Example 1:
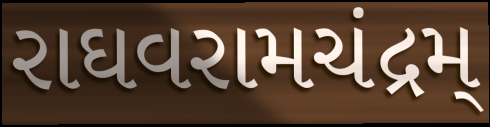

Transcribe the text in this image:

રાઘવરામચંદ્રમ્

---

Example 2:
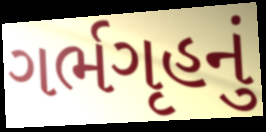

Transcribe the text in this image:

ગર્ભગૃહનું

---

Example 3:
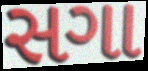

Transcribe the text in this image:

સગા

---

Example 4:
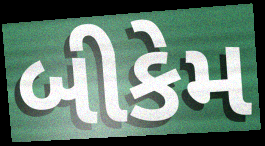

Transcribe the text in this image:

બીકેમ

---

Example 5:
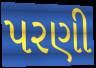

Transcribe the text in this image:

પરણી